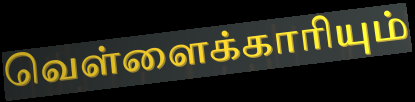
வெள்ளைக்காரியும்